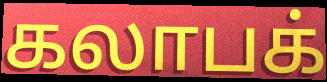
கலாபக்